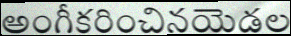
అంగీకరించినయెడల